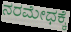
ನರಮೇಧಕ್ಕೆ